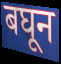
बघून